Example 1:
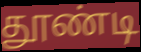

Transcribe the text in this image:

தூண்டி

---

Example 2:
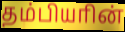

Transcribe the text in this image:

தம்பியரின்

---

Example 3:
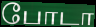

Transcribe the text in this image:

போடா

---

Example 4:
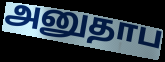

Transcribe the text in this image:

அனுதாப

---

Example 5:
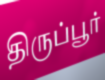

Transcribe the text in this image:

திருப்பூர்